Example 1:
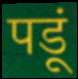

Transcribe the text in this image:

पडूं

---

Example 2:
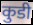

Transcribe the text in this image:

कुडी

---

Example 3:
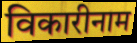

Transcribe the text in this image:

विकारीनाम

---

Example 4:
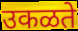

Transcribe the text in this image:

उकळते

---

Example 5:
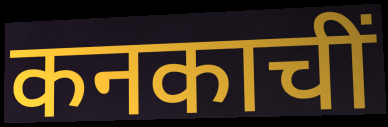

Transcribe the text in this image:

कनकाचीं